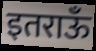
इतराऊँ